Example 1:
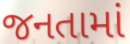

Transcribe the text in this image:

જનતામાં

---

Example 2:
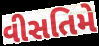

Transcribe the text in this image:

વીસતિમે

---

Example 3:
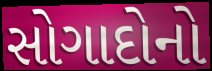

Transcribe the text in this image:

સોગાદોનો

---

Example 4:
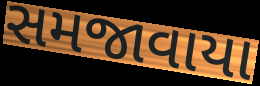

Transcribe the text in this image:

સમજાવાયા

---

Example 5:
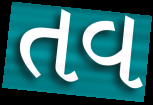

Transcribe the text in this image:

તવ